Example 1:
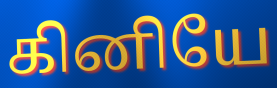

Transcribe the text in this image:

கினியே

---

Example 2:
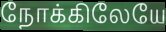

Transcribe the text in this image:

நோக்கிலேயே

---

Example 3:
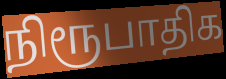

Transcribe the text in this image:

நிரூபாதிக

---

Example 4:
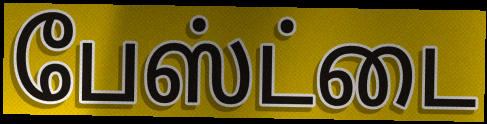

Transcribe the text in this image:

பேஸ்ட்டை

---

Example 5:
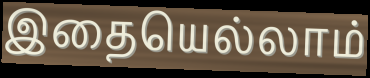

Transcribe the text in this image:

இதையெல்லாம்